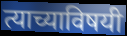
त्याच्याविषयी